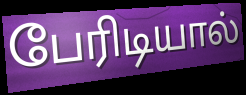
பேரிடியால்